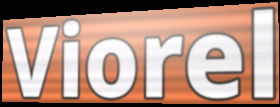
Viorel